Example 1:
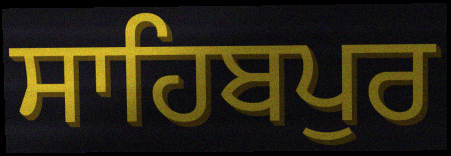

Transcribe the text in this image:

ਸਾਹਿਬਪੁਰ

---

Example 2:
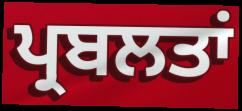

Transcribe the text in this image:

ਪ੍ਰਬਲਤਾਂ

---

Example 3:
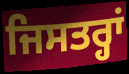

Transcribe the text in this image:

ਜਿਸਤਰ੍ਹਾਂ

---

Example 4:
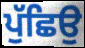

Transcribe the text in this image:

ਪੁੱਛਿਉ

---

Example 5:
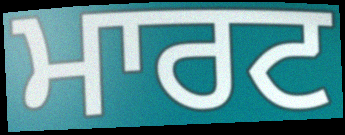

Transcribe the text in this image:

ਮਾਰਟ